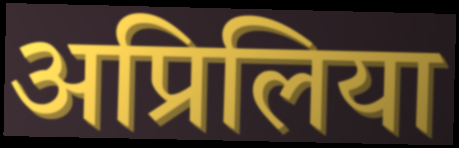
अप्रिलिया